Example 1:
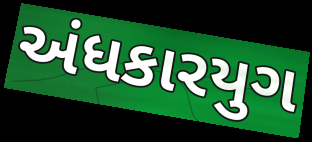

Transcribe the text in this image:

અંધકારયુગ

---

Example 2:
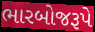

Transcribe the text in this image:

ભારબોજરૂપે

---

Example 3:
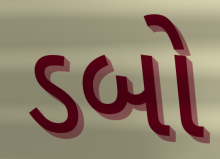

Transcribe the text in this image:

ડબો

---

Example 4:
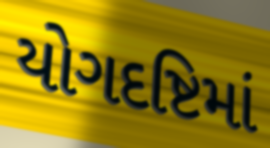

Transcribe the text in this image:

યોગદષ્ટિમાં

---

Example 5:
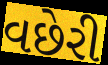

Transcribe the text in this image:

વછેરી